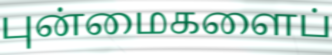
புன்மைகளைப்